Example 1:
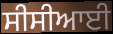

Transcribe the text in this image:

ਸੀਸੀਆਈ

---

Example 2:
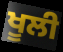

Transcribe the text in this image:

ਖੂਲੀ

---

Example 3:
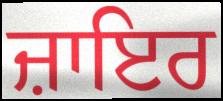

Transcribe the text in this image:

ਜ਼ਾਇਰ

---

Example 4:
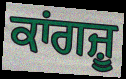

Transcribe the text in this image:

ਕਾਂਗਜ਼ੂ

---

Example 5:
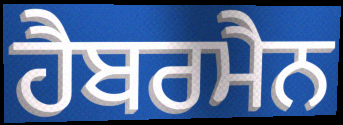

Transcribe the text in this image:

ਹੈਬਰਮੈਨ